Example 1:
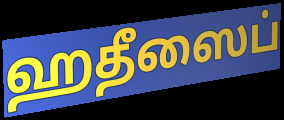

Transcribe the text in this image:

ஹதீஸைப்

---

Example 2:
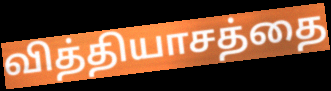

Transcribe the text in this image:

வித்தியாசத்தை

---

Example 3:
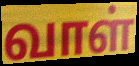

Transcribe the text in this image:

வாள்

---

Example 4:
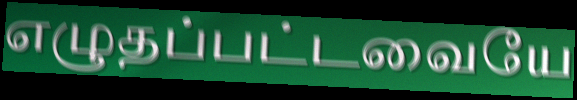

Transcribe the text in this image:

எழுதப்பட்டவையே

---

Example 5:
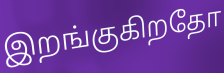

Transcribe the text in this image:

இறங்குகிறதோ